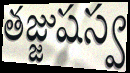
తజ్జుషస్వ